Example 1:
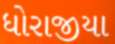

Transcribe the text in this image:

ધોરાજીયા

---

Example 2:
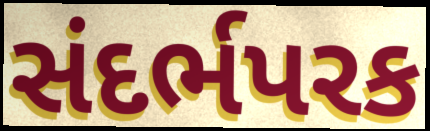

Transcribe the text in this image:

સંદર્ભપરક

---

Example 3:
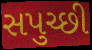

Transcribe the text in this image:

સપુચ્છી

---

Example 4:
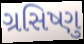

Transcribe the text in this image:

ગ્રસિષ્ણુ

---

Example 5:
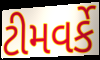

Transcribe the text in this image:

ટીમવર્કે